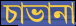
চাভানা